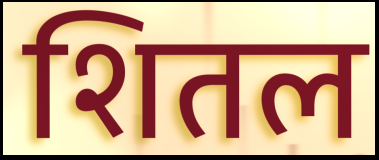
शितल